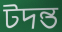
টদন্ত